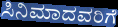
ಸಿನಿಮಾದವರಿಗೆ